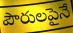
పౌరులపైనే